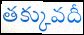
తక్కువదీ